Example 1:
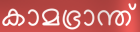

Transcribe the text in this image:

കാമഭ്രാന്ത്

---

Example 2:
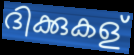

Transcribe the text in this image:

ദിക്കുകള്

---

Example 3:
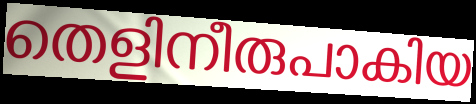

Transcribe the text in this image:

തെളിനീരുപാകിയ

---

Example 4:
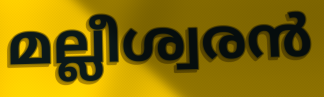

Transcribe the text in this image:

മല്ലീശ്വരൻ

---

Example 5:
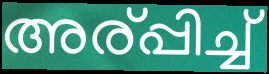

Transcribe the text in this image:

അര്പ്പിച്ച്